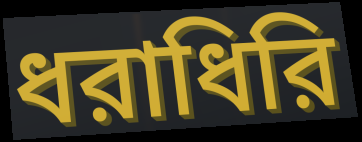
ধরাধিরি